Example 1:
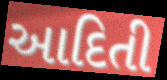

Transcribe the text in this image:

આદિતી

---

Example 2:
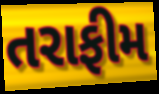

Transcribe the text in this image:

તરાફીમ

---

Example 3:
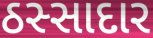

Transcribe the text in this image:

ઠસ્સાદાર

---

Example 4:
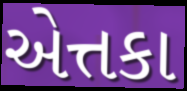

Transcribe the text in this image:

એત્તકા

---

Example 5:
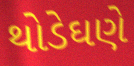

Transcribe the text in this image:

થોડેઘણે